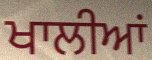
ਖਾਲੀਆਂ